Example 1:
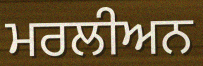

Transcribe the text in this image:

ਮਰਲੀਅਨ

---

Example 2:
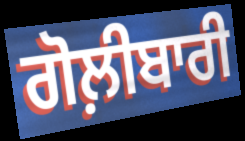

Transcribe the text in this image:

ਗੋਲ਼ੀਬਾਰੀ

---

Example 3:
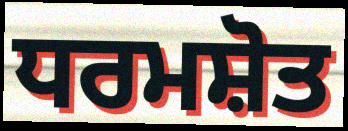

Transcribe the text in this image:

ਧਰਮਸ਼ੋਤ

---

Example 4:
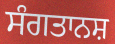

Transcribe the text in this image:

ਸੰਗਤਾਨਸ਼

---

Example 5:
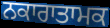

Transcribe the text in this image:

ਨਕਾਰਾਤਾਮਕ